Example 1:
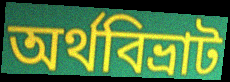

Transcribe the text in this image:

অর্থবিভ্রাট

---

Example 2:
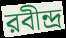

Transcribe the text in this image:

রবীন্দ্র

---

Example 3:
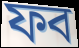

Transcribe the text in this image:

ফব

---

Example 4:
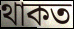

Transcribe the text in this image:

থাকত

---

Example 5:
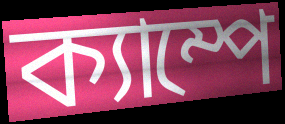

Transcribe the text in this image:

ক্যাম্পে